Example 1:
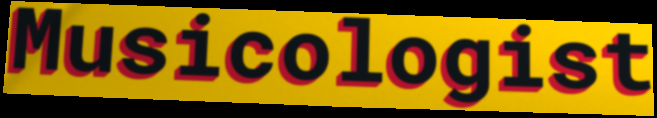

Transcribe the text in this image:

Musicologist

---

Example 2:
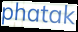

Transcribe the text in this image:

phatak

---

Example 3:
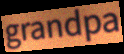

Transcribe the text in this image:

grandpa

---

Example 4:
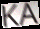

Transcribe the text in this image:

KA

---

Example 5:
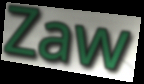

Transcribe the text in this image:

Zaw